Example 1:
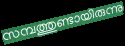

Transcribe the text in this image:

സമ്പത്തുണ്ടായിരുന്നു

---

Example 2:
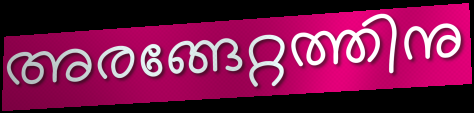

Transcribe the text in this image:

അരങ്ങേറ്റത്തിനു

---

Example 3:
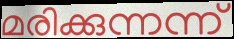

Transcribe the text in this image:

മരിക്കുന്നന്ന്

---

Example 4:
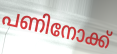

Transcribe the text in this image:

പണിനോക്ക്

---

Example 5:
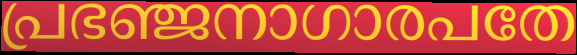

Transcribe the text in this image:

പ്രഭഞ്ജനാഗാരപതേ